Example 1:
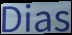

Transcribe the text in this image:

Dias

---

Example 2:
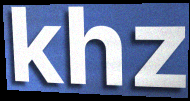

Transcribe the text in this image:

khz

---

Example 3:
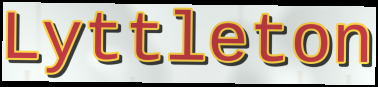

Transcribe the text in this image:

Lyttleton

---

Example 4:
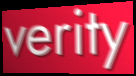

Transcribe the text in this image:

verity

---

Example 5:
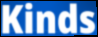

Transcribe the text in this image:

Kinds